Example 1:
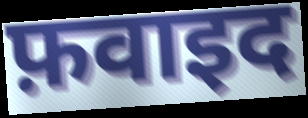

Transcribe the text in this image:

फ़वाइद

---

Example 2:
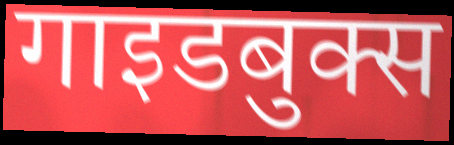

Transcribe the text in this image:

गाइडबुक्स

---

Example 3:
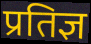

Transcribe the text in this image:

प्रतिज्ञ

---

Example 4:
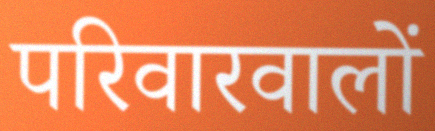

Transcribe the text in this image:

परिवारवालों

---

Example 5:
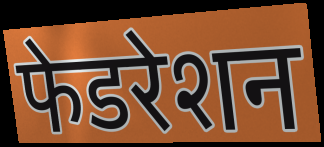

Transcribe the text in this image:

फेडरेशन